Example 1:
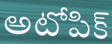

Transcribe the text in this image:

అటోపిక్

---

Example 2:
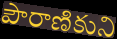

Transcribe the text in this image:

పౌరాణికుని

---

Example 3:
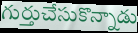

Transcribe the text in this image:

గుర్తుచేసుకొన్నాడు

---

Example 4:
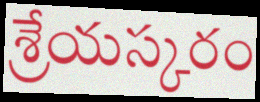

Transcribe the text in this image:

శ్రేయస్కరం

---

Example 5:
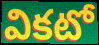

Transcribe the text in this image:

వికటో